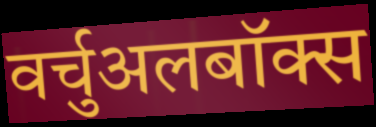
वर्चुअलबॉक्स